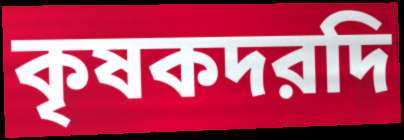
কৃষকদরদি